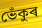
ভেঁকুৰ